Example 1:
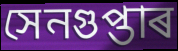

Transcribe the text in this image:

সেনগুপ্তাৰ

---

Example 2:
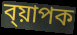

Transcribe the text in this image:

ব্য়াপক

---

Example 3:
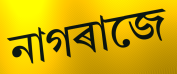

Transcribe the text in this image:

নাগৰাজে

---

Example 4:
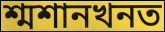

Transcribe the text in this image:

শ্মশানখনত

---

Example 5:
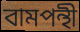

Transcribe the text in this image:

বামপন্থী